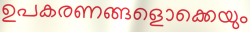
ഉപകരണങ്ങളൊക്കെയും